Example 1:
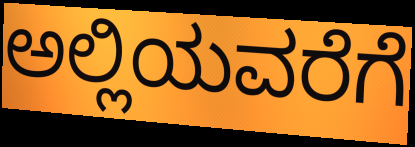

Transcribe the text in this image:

ಅಲ್ಲಿಯವರೆಗೆ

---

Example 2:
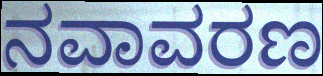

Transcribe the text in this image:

ನವಾವರಣ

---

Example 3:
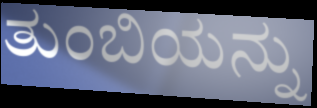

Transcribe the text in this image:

ತುಂಬಿಯನ್ನು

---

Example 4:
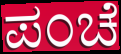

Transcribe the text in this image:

ಪಂಚೆ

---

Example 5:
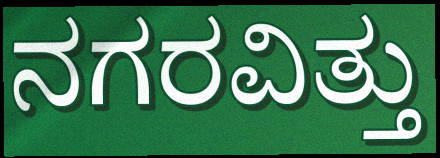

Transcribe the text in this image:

ನಗರವಿತ್ತು